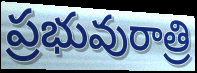
ప్రభువురాత్రి